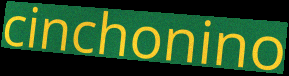
cinchonino